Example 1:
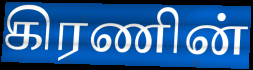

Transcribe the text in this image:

கிரணின்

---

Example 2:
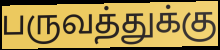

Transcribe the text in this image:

பருவத்துக்கு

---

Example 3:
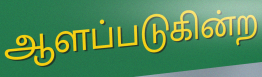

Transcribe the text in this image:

ஆளப்படுகின்ற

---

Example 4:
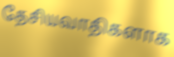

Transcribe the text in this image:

தேசியவாதிகளாக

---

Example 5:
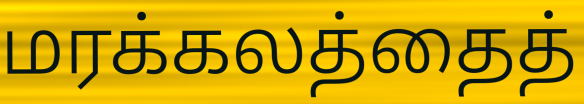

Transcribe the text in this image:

மரக்கலத்தைத்